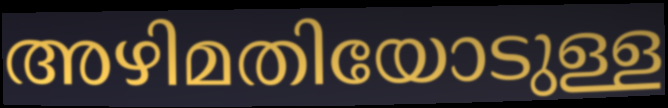
അഴിമതിയോടുള്ള